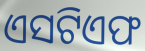
ଏସଟିଏଫ